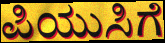
ಪಿಯುಸಿಗೆ